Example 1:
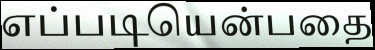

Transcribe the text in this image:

எப்படியென்பதை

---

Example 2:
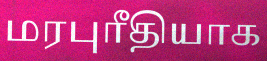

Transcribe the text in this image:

மரபுரீதியாக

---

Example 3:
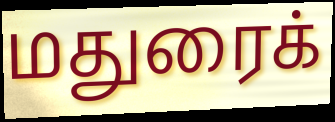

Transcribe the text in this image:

மதுரைக்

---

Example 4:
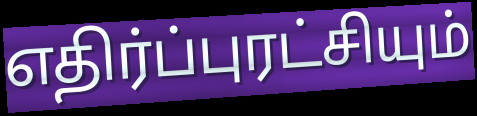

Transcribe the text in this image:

எதிர்ப்புரட்சியும்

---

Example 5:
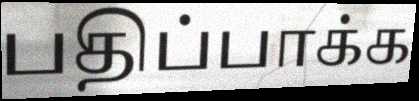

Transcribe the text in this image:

பதிப்பாக்க